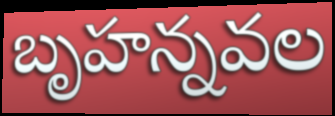
బృహన్నవల